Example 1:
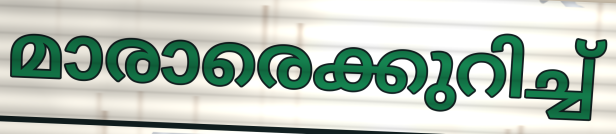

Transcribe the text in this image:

മാരാരെക്കുറിച്ച്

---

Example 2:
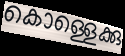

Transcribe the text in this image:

കൊള്ളെക്കു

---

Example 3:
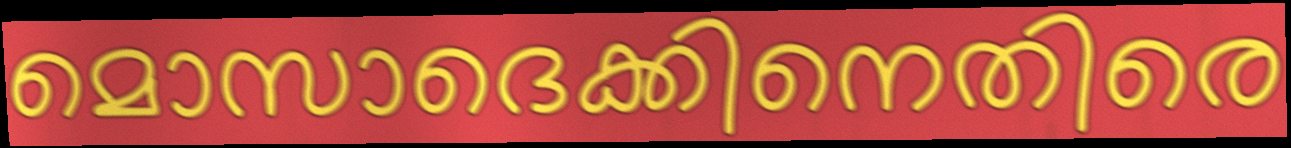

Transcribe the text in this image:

മൊസാദെക്കിനെതിരെ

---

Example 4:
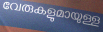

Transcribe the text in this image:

വേരുകളുമായുള്ള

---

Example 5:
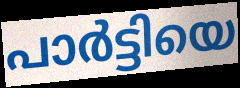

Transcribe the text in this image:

പാർട്ടിയെ